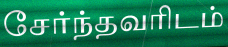
சேர்ந்தவரிடம்